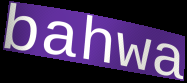
bahwa